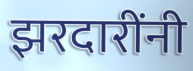
झरदारींनी